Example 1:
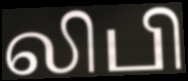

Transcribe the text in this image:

லிபி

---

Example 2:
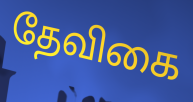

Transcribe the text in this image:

தேவிகை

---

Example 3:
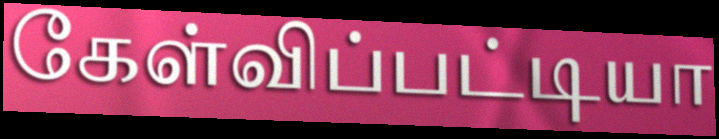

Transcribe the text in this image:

கேள்விப்பட்டியா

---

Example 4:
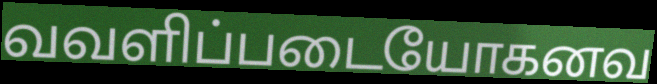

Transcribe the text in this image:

வவளிப்படையோகனவ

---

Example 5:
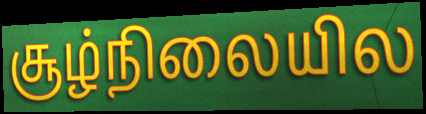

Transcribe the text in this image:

சூழ்நிலையில